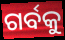
ଗର୍ବକୁ